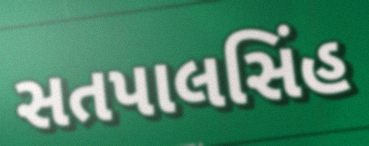
સતપાલસિંહ